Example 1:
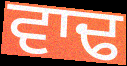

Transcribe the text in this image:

ਵਾਢ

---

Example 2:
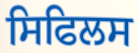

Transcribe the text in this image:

ਸਿਫਿਲਸ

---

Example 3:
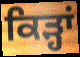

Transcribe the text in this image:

ਕਿੜ੍ਹਾਂ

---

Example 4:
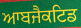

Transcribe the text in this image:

ਆਬਜੈਕਟਿਡ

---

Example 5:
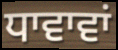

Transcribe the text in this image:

ਧਾਵਾਵਾਂ